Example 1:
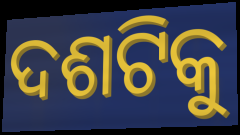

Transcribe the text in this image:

ଦଶଟିକୁ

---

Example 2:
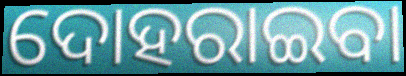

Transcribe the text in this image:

ଦୋହରାଇବା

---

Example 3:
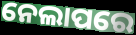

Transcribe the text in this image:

ନେଲାପରେ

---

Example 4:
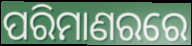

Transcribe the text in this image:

ପରିମାଣରରେ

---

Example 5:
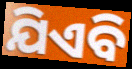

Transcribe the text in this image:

ଯିଏବି